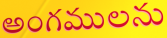
అంగములను